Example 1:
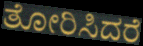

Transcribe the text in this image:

ತೋರಿಸಿದರೆ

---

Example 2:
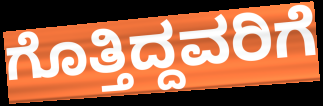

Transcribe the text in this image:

ಗೊತ್ತಿದ್ದವರಿಗೆ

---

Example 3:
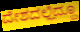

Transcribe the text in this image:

ದೇಶದಲ್ಲಿದ್ದೂ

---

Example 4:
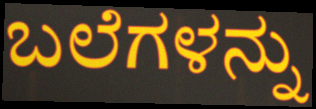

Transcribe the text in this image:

ಬಲೆಗಳನ್ನು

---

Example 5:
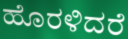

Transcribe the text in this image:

ಹೊರಳಿದರೆ